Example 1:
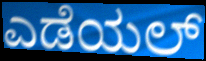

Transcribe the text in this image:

ಎಡೆಯಲ್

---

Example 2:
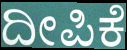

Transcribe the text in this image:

ದೀಪಿಕೆ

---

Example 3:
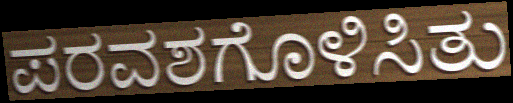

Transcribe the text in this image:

ಪರವಶಗೊಳಿಸಿತು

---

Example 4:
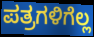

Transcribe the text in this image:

ಪತ್ರಗಳಿಗೆಲ್ಲ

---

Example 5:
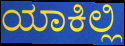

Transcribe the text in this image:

ಯಾಕಿಲ್ಲಿ